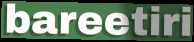
bareetiri